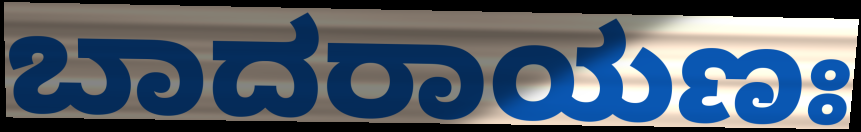
ಬಾದರಾಯಣಃ